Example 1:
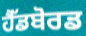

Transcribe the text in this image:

ਹੈੱਡਬੋਰਡ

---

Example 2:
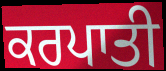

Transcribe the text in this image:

ਕਰਪਾਤੀ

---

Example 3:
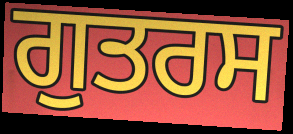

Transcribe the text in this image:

ਗੁਤਰਸ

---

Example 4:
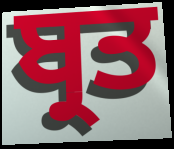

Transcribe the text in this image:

ਬ੍ਰਤ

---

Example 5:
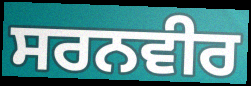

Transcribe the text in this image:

ਸਰਨਵੀਰ